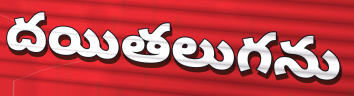
దయితలుగను